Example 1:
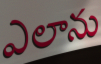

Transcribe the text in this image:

ఎలాను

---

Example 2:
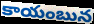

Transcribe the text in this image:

కాయంబున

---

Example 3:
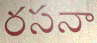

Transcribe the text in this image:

రసనా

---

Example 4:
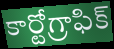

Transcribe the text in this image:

కార్టోగ్రాఫిక్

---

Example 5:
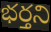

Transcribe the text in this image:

భర్తని